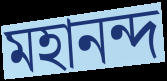
মহানন্দ